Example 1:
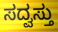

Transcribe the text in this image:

ಸದ್ವಸ್ತು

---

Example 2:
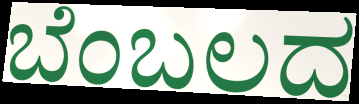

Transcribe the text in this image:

ಬೆಂಬಲದ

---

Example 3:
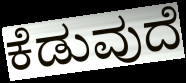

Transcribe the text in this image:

ಕೆಡುವುದೆ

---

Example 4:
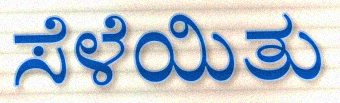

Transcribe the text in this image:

ಸೆಳೆಯಿತು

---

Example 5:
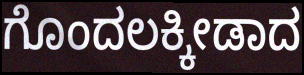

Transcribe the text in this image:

ಗೊಂದಲಕ್ಕೀಡಾದ